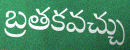
బ్రతకవచ్చు